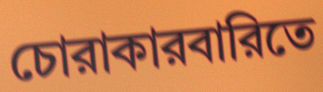
চোরাকারবারিতে